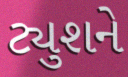
ટ્યુશને